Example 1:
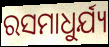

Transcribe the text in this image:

ରସମାଧୁର୍ଯ୍ୟ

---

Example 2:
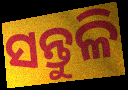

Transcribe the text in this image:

ସନ୍ତୁଳି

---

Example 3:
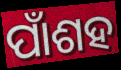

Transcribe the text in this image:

ପାଁଶହ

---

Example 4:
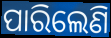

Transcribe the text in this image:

ପାରିଲେଣି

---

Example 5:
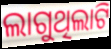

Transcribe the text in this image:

ଲାଗୁଥିଲାଟି